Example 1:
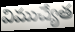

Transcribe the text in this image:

విముచ్యేత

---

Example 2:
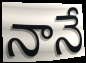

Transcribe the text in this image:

నానే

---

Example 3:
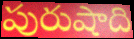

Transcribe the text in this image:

పురుషాది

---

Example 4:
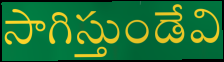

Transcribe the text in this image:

సాగిస్తుండేవి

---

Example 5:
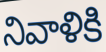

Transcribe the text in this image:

నివాళికి